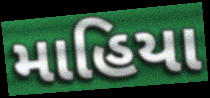
માહિયા